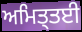
ਅਮਿਤ੍ਤਈ